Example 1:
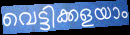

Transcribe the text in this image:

വെട്ടിക്കളയാം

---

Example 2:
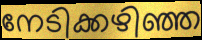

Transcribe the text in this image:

നേടിക്കഴിഞ്ഞ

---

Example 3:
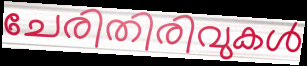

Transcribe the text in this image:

ചേരിതിരിവുകൾ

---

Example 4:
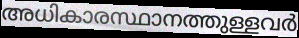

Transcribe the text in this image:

അധികാരസ്ഥാനത്തുള്ളവർ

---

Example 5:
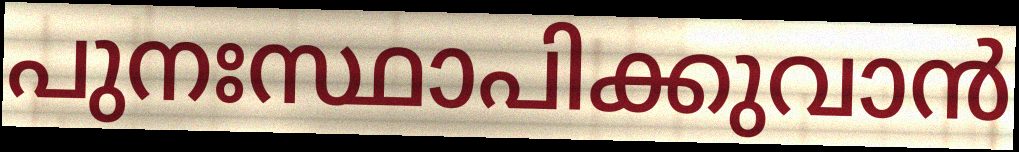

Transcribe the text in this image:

പുനഃസ്ഥാപിക്കുവാൻ